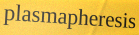
plasmapheresis